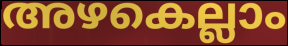
അഴകെല്ലാം